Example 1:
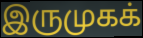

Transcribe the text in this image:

இருமுகக்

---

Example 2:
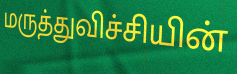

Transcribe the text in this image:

மருத்துவிச்சியின்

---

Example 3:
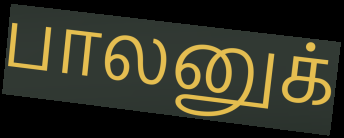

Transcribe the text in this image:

பாலனுக்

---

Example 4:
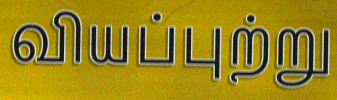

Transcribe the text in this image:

வியப்புற்று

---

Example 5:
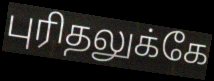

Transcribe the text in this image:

புரிதலுக்கே